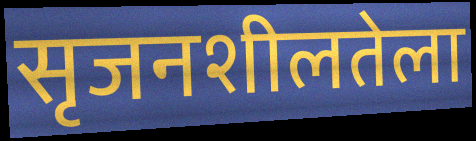
सृजनशीलतेला